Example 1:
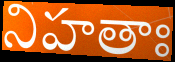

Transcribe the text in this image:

నిహతాః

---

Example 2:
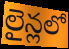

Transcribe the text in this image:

లైన్లలో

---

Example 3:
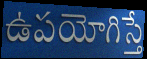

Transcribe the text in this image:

ఉపయోగిస్తే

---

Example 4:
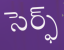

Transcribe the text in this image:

సెర్ఫ్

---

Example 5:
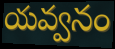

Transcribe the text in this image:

యవ్వనం